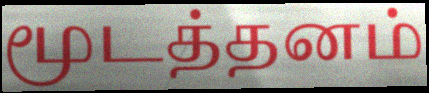
மூடத்தனம்